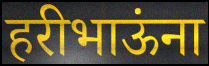
हरीभाऊंना